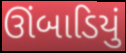
ઊંબાડિયું